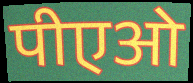
पीएओ